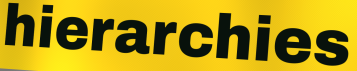
hierarchies